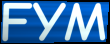
FYM